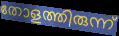
തോളത്തിരുന്ന്